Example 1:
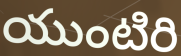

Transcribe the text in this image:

యుంటిరి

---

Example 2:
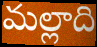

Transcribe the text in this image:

మల్లాది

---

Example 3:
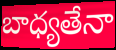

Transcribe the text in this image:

బాధ్యతేనా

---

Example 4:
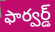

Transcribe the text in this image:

ఫార్వర్డ్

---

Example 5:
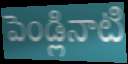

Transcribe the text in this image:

పెండ్లినాటి